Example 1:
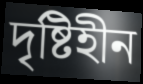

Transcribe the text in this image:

দৃষ্টিহীন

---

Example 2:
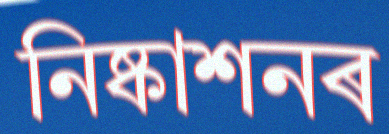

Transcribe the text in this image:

নিষ্কাশনৰ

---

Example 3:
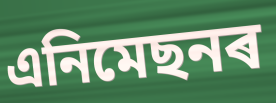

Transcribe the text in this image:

এনিমেছনৰ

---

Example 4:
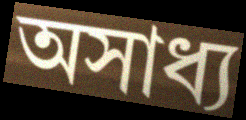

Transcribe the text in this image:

অসাধ্য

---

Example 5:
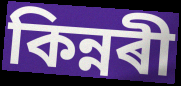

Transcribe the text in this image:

কিন্নৰী